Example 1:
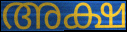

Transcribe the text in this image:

അക്ഷ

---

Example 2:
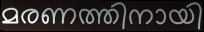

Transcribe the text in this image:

മരണത്തിനായി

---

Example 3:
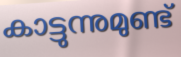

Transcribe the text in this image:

കാട്ടുന്നുമുണ്ട്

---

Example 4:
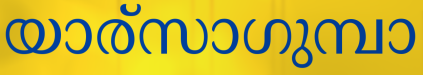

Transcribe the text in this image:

യാര്സാഗുമ്പാ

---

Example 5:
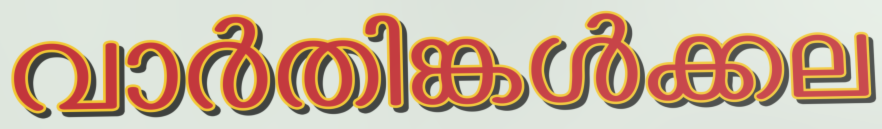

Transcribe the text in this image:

വാർതിങ്കൾക്കല